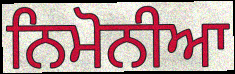
ਨਿਮੋਨੀਆ